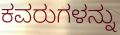
ಕವರುಗಳನ್ನು